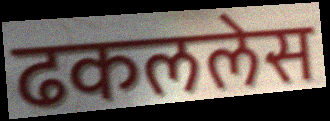
ढकललेस